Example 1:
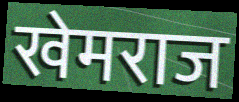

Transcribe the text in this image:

खेमराज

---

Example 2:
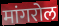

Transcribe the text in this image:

मांगरोल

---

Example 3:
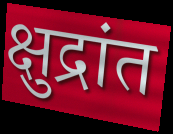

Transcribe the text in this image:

क्षुद्रांत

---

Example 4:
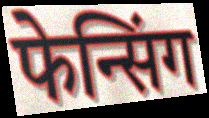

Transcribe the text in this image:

फेन्सिंग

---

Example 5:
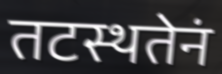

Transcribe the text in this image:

तटस्थतेनं